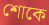
শোকে